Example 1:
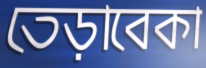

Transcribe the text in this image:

তেড়াবেকা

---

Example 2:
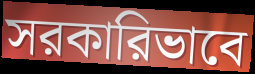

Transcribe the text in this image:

সরকারিভাবে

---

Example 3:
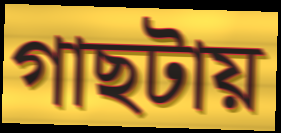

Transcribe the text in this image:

গাছটায়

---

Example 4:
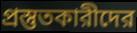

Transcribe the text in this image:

প্রস্তুতকারীদের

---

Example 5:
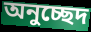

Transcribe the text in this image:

অনুচ্ছেদ